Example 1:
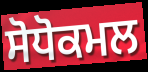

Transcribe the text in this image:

ਸੋਧੋਕਮਲ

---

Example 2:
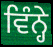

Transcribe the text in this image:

ਵਿੰਨ੍ਹੇ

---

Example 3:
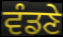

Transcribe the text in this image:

ਵੰਡਣੇ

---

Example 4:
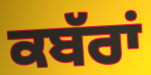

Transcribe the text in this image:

ਕਬੱਰਾਂ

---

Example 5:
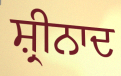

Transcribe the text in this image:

ਸ਼੍ਰੀਨਾਦ